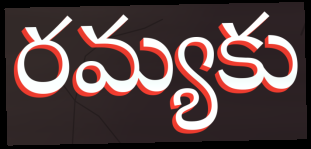
రమ్యకు